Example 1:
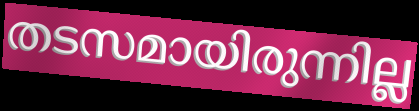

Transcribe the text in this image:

തടസമായിരുന്നില്ല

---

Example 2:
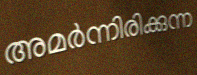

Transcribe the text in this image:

അമർന്നിരിക്കുന്ന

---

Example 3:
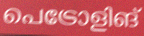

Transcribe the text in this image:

പെട്രോളിങ്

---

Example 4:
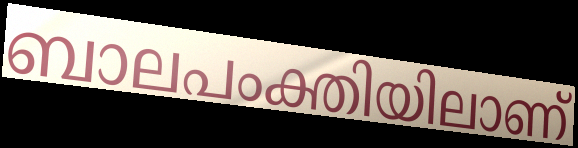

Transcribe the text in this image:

ബാലപംക്തിയിലാണ്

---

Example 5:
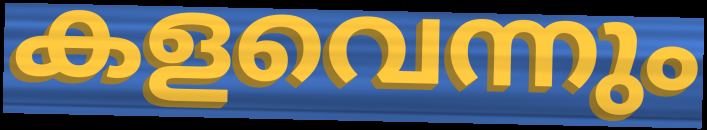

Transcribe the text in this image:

കളവെന്നും